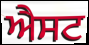
ਐਸਟ